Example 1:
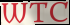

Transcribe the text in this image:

WTC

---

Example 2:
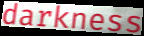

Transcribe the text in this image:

darkness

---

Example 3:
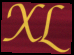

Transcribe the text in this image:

XL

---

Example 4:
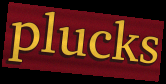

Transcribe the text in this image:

plucks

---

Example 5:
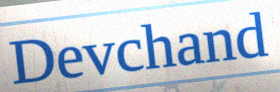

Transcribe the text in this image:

Devchand